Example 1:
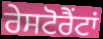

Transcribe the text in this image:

ਰੇਸਟੋਰੈਂਟਾਂ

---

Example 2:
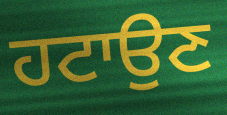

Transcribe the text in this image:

ਹਟਾਉਣ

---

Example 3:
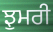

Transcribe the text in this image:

ਝੁਮਰੀ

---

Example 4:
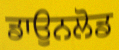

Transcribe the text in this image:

ਡਾਉਨਲੋਡ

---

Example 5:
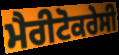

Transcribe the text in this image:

ਮੈਰੀਟੋਕਰੇਸੀ